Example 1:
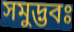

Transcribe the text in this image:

সমুদ্ভবঃ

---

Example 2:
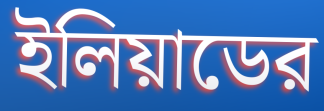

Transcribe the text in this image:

ইলিয়াডের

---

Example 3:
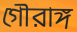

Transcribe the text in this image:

গৌরাঙ্গ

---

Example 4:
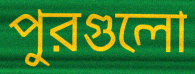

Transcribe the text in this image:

পুরগুলো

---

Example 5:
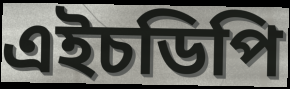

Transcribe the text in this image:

এইচডিপি